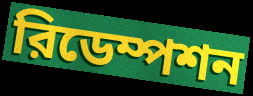
রিডেম্পশন